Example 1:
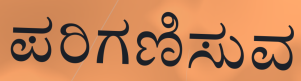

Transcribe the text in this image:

ಪರಿಗಣಿಸುವ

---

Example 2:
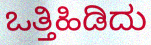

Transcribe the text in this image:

ಒತ್ತಿಹಿಡಿದು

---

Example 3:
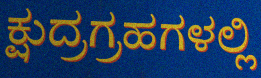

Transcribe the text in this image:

ಕ್ಷುದ್ರಗ್ರಹಗಳಲ್ಲಿ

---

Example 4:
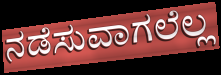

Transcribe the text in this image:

ನಡೆಸುವಾಗಲೆಲ್ಲ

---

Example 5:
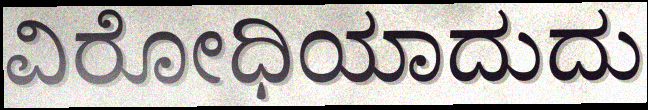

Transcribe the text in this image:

ವಿರೋಧಿಯಾದುದು